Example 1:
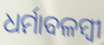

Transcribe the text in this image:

ଧର୍ମାବଳମ୍ବୀ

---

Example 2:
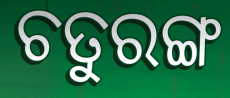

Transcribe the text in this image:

ଚତୁରଙ୍ଗ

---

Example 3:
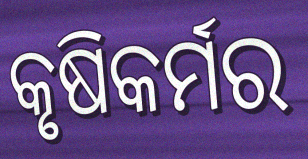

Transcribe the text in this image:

କୃଷିକର୍ମର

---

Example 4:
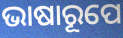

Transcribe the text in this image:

ଭାଷାରୂପେ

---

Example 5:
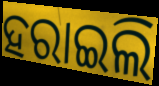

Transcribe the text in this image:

ହରାଇଲି